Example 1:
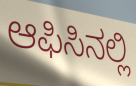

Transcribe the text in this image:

ಆಫಿಸಿನಲ್ಲಿ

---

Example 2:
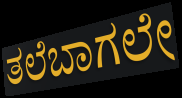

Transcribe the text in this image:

ತಲೆಬಾಗಲೇ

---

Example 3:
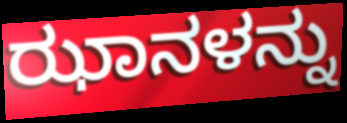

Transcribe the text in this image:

ಝಾನಳನ್ನು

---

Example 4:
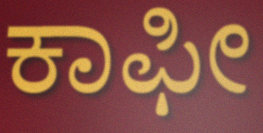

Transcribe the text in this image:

ಕಾಫೀ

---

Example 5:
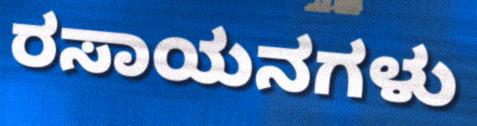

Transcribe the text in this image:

ರಸಾಯನಗಳು